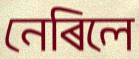
নেৰিলে